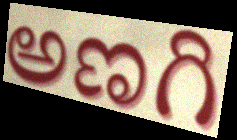
అణగి